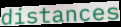
distances